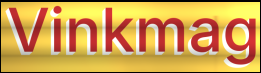
Vinkmag